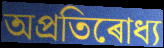
অপ্ৰতিৰোধ্য